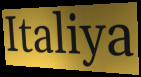
Italiya